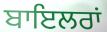
ਬਾਇਲਰਾਂ